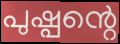
പുഷ്പന്റെ